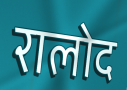
रालोद